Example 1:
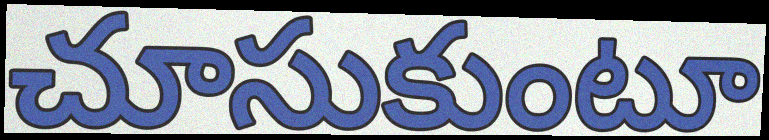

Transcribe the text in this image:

చూసుకుంటూ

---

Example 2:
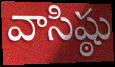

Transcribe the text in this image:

వాసిష్ఠు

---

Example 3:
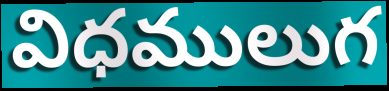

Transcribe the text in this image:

విధములుగ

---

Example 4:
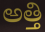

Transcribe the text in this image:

అత్తి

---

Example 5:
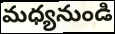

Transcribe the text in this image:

మధ్యనుండి